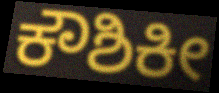
ಕೌಶಿಕೀ